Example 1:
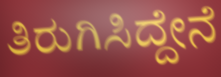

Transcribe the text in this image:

ತಿರುಗಿಸಿದ್ದೇನೆ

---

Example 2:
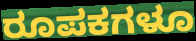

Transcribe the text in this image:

ರೂಪಕಗಳೂ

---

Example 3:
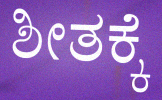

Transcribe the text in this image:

ಶೀತಕ್ಕೆ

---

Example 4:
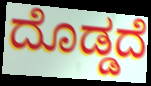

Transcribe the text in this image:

ದೊಡ್ಡದೆ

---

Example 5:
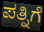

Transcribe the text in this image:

ಪತ್ನಿಗೆ